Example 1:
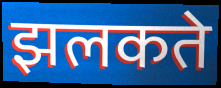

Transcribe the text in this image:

झलकते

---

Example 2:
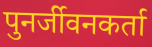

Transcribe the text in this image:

पुनर्जीवनकर्ता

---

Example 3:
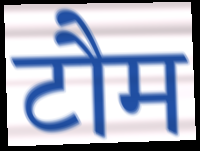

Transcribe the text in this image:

टौम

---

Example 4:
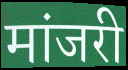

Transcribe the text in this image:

मांजरी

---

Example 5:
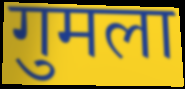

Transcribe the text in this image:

गुमला